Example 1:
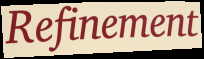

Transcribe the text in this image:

Refinement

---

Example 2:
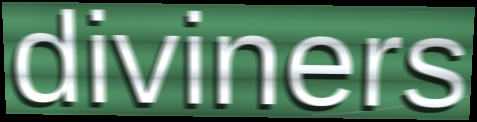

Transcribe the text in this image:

diviners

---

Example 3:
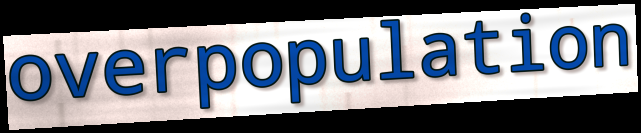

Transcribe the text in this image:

overpopulation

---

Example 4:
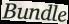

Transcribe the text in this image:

Bundle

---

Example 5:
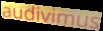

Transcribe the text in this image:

audivimus